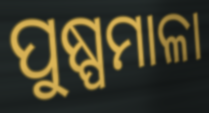
ପୁଷ୍ପମାଳା